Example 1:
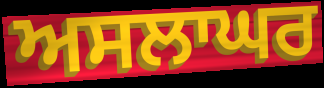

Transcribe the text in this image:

ਅਸਲਾਘਰ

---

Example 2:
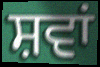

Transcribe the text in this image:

ਸ਼ਵਾਂ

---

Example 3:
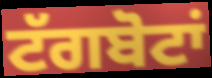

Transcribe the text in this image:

ਟੱਗਬੋਟਾਂ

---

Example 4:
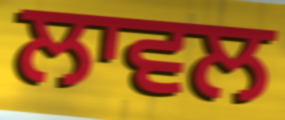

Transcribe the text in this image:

ਲਾਵਲ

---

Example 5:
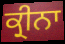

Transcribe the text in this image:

ਕ੍ਰੀਨਾ